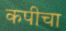
कपीचा